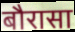
बौरासा